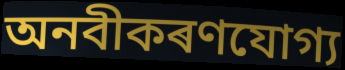
অনবীকৰণযোগ্য